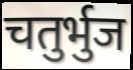
चतुर्भुज